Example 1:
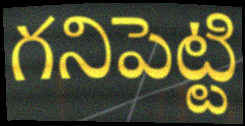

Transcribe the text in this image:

గనిపెట్టి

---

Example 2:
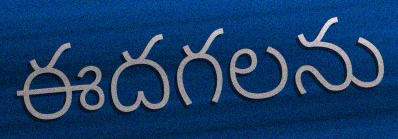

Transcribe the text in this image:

ఈదగలను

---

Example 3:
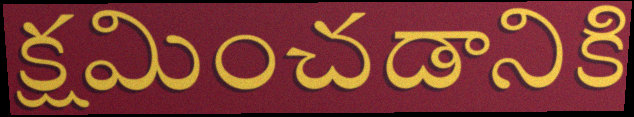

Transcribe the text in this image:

క్షమించడానికి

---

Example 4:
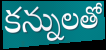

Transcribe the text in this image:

కన్నులతో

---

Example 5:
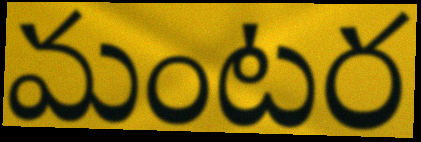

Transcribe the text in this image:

మంటర